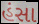
હંસા